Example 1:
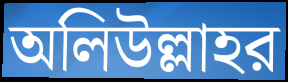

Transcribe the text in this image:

অলিউল্লাহর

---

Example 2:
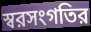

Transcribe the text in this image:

স্বরসংগতির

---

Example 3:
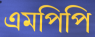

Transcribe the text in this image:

এমপিপি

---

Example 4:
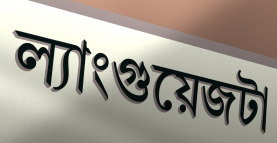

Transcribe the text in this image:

ল্যাংগুয়েজটা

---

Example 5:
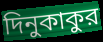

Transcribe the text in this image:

দিনুকাকুর